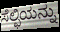
ಸೆಲ್ಫಿಯನ್ನು